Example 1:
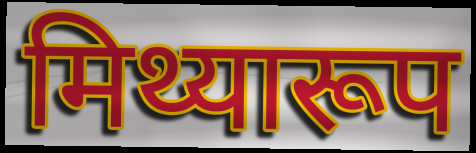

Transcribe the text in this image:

मिथ्यारूप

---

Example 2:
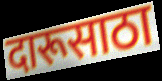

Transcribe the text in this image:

दारूसाठा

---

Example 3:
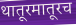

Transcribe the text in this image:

थातूरमातूरच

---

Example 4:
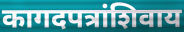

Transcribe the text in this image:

कागदपत्रांशिवाय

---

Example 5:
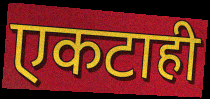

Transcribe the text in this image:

एकटाही